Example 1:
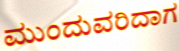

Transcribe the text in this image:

ಮುಂದುವರಿದಾಗ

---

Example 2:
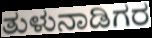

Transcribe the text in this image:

ತುಳುನಾಡಿಗರ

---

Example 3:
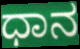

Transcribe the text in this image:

ಧಾನ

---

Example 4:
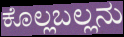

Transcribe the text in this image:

ಕೊಲ್ಲಬಲ್ಲನು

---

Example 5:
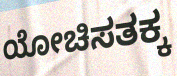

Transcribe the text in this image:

ಯೋಚಿಸತಕ್ಕ